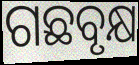
ଗଛବୃକ୍ଷ